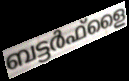
ബട്ടർഫ്ളൈ